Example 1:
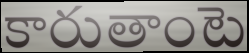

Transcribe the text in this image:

కారుతాంటె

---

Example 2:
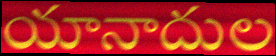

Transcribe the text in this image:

యానాదుల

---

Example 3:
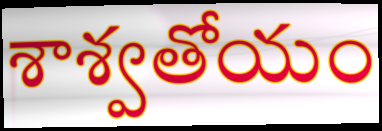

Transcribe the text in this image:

శాశ్వతోయం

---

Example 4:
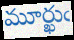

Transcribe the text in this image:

మూర్ఖుఁ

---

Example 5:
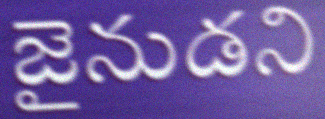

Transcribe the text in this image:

జైనుడని